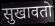
सुखावतो